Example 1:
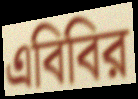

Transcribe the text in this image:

এবিবির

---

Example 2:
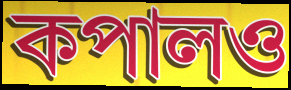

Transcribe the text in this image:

কপালও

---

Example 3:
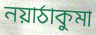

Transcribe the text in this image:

নয়াঠাকুমা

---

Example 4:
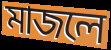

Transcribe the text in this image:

মাজলে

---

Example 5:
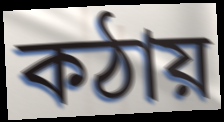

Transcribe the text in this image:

কঠায়